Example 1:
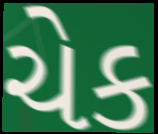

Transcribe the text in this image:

ચેક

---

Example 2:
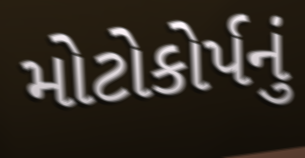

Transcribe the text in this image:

મોટોકોર્પનું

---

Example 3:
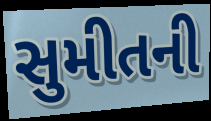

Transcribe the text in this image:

સુમીતની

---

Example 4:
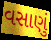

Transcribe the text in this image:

વસાણું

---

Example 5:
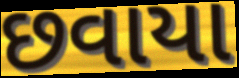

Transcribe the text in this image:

છવાયા